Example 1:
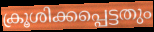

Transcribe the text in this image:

ക്രൂശിക്കപ്പെട്ടതും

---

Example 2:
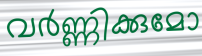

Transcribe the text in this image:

വർണ്ണിക്കുമോ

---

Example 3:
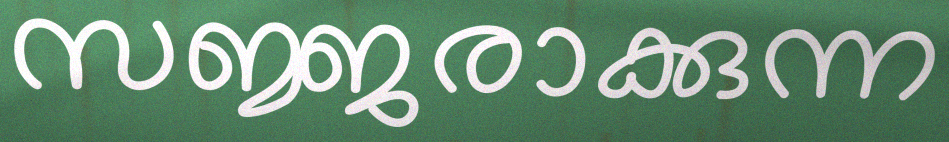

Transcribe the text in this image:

സജ്ജരാക്കുന്ന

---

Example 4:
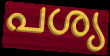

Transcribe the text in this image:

പശ്യ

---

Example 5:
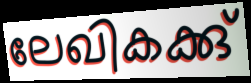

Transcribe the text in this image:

ലേഖികക്കു്